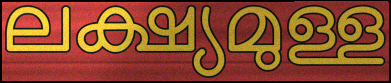
ലക്ഷ്യമുള്ള